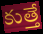
కుత్తే